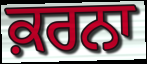
ਕ਼ਰਨਾ